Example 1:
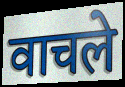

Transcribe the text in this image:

वाचले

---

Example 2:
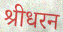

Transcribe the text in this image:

श्रीधरन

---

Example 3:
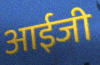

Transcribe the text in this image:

आईजी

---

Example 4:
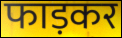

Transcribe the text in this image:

फाड़कर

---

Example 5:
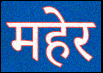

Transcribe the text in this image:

महेर